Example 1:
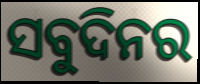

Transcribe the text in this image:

ସବୁଦିନର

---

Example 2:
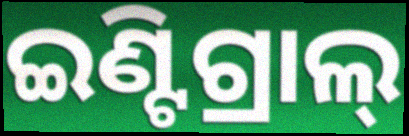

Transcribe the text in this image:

ଇଣ୍ଟିଗ୍ରାଲ୍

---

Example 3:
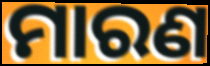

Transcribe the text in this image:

ମାରଣ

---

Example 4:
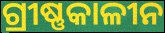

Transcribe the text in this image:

ଗ୍ରୀଷ୍ଣକାଳୀନ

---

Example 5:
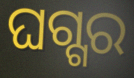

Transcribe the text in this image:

ଘଗ୍ଗର